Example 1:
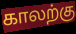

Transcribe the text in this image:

காலற்கு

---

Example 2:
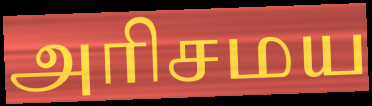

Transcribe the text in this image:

அரிசமய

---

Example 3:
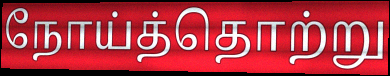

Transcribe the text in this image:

நோய்த்தொற்று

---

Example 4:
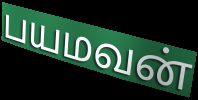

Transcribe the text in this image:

பயமவன்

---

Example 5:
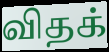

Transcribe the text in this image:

விதக்